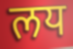
लय